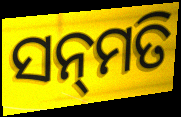
ସନ୍‌ମତି